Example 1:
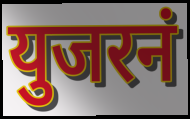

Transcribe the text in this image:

युजरनं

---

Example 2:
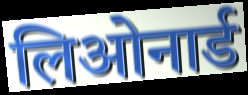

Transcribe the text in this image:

लिओनार्ड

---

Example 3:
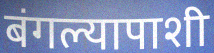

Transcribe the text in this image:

बंगल्यापाशी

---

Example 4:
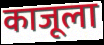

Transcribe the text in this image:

काजूला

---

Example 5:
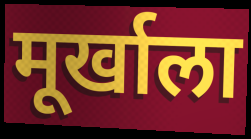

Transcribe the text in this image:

मूर्खाला